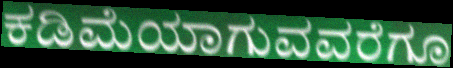
ಕಡಿಮೆಯಾಗುವವರೆಗೂ